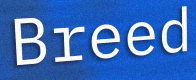
Breed